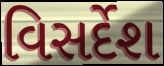
વિસર્દેશ